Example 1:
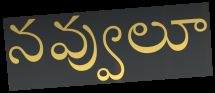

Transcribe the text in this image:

నవ్వులూ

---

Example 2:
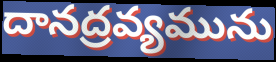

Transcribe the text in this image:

దానద్రవ్యమును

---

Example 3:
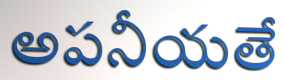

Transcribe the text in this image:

అపనీయతే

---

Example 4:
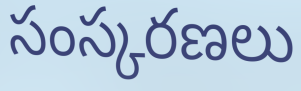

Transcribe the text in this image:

సంస్కరణలు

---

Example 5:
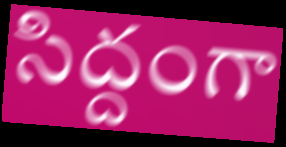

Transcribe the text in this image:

సిద్దంగా